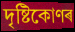
দৃষ্টিকোণৰ